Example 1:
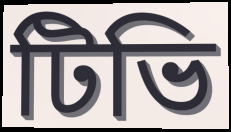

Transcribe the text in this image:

টিভি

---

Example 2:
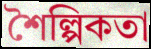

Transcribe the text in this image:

শৈল্পিকতা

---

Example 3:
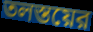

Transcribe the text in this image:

তলস্তয়ের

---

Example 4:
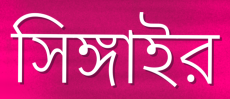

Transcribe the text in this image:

সিঙ্গাইর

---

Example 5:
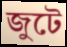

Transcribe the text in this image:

জুটে